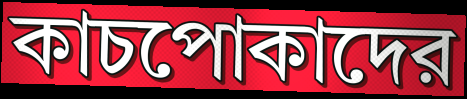
কাচপোকাদের